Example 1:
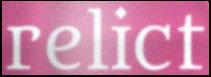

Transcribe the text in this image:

relict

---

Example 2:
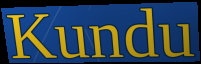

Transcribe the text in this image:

Kundu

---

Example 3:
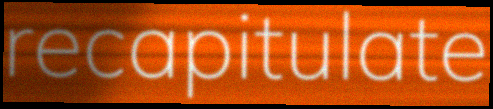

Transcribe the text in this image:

recapitulate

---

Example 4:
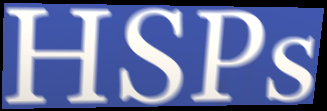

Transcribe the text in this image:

HSPs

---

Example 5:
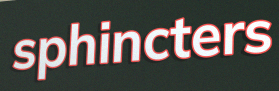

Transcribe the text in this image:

sphincters